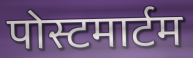
पोस्टमार्टम